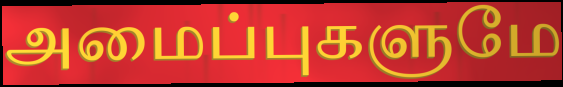
அமைப்புகளுமே